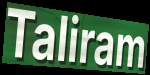
Taliram